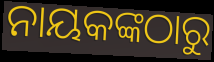
ନାୟକଙ୍କଠାରୁ